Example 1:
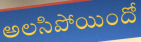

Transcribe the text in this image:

అలసిపోయిందో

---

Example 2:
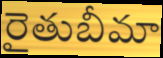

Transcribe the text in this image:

రైతుబీమా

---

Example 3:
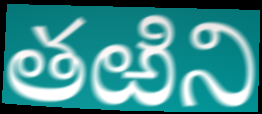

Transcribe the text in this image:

తఱిని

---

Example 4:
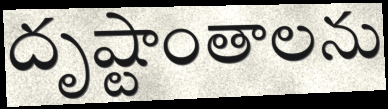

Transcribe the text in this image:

దృష్టాంతాలను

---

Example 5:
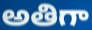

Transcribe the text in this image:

అతిగా